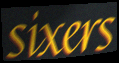
sixers